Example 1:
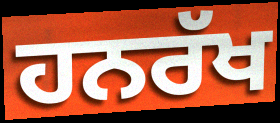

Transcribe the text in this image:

ਹਨਰੱਖ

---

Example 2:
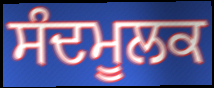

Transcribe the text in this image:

ਸੰਦਮੂਲਕ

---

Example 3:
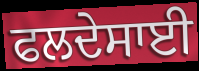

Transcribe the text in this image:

ਫਲਦੇਸਾਈ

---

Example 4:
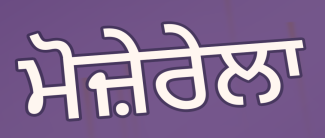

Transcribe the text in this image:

ਮੋਜ਼ੇਰੇਲਾ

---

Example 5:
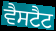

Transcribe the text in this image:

ਵੈਸਟੈਟ